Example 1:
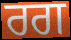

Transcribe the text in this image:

ਰਗ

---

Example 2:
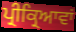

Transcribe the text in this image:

ਪ੍ਰੀਕ੍ਰਿਆਵਾਂ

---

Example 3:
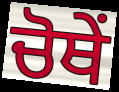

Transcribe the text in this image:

ਚੋਥੇਂ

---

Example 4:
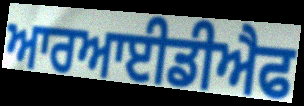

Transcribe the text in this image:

ਆਰਆਈਡੀਐਫ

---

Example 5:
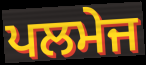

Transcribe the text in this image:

ਪਲਮੇਜ